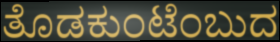
ತೊಡಕುಂಟೆಂಬುದ